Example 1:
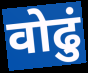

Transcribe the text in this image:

वोढुं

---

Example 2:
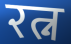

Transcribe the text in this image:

रत्न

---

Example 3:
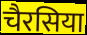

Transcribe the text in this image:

चैरसिया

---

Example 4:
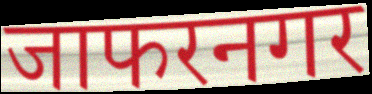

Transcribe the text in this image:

जाफरनगर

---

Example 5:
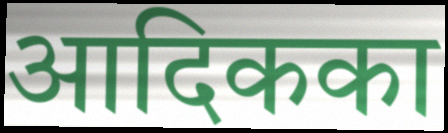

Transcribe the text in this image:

आदिकका